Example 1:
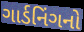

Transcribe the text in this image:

ગાર્ડનિંગનો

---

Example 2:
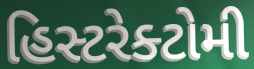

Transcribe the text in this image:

હિસ્ટરેક્ટોમી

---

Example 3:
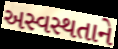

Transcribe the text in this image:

અસ્વસ્થતાને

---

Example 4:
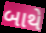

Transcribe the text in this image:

બાથે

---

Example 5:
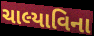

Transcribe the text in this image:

ચાલ્યાવિના